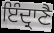
ਇੰਦ੍ਰਾਣੈ